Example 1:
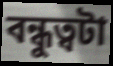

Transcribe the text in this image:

বন্ধুত্বটা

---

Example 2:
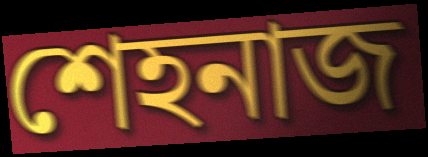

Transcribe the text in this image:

শেহনাজ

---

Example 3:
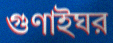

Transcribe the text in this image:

গুণাইঘর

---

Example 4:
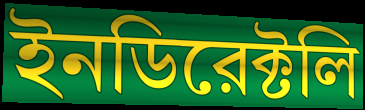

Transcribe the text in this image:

ইনডিরেক্টলি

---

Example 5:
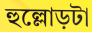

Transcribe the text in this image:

হুল্লোড়টা